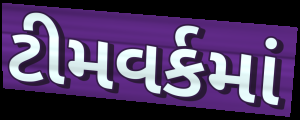
ટીમવર્કમાં